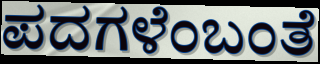
ಪದಗಳೆಂಬಂತೆ